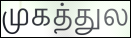
முகத்துல